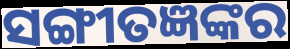
ସଙ୍ଗୀତଜ୍ଞଙ୍କର